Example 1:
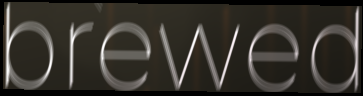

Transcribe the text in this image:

brewed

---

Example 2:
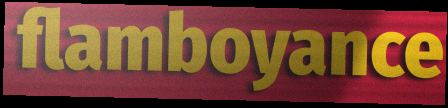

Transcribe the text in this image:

flamboyance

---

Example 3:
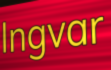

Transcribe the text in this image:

Ingvar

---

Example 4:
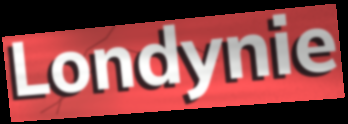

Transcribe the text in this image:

Londynie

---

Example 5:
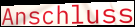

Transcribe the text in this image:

Anschluss